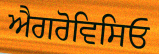
ਐਗਰੋਵਿਸਿਓ